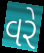
વરે